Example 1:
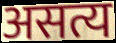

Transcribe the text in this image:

असत्य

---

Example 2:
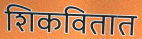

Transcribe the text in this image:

शिकवितात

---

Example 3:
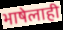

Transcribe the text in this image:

भाषेलाही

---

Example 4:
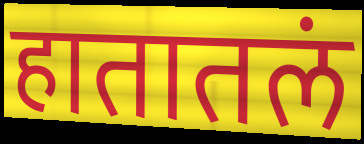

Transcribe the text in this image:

हातातलं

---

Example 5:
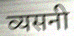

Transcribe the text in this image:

व्यसनी